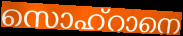
സൊഹ്റാനെ